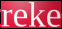
reke